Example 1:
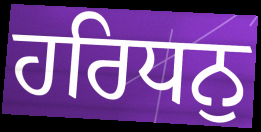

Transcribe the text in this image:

ਹਰਿਧਨੁ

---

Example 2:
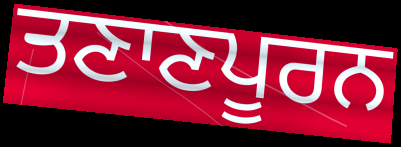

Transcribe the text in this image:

ਤਣਾਣਪੂਰਨ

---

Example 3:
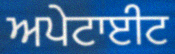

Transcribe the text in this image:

ਅਪੇਟਾਈਟ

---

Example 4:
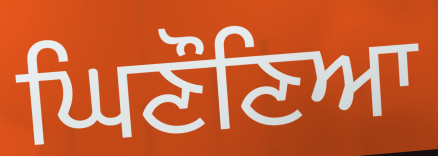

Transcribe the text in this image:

ਘਿਣੌਣਿਆ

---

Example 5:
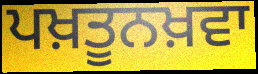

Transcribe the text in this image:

ਪਖ਼ਤੂਨਖ਼ਵਾ